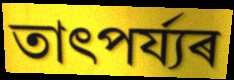
তাৎপৰ্য্যৰ